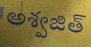
అశ్వజిత్